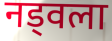
नड्वला